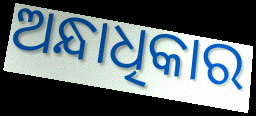
ଅନ୍ଧାଧିକାର